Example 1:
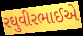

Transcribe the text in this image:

રઘુવીરભાઈએ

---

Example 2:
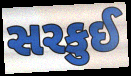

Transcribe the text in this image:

સરકુઈ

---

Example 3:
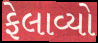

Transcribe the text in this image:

ફેલાવ્યો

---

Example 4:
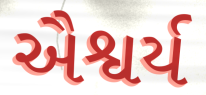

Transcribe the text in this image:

ઐશ્વર્ય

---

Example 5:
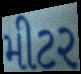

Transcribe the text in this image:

મીટર